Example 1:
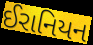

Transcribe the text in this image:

ઈરાનિયન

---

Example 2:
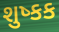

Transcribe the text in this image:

શુષ્કક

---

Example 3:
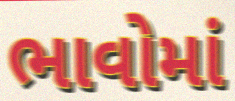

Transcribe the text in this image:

ભાવોમાં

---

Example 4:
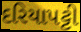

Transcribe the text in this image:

દરિયાપટ્ટી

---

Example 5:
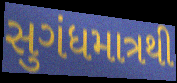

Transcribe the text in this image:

સુગંધમાત્રથી